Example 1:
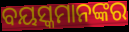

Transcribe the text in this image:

ବୟସ୍କମାନଙ୍କର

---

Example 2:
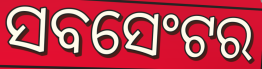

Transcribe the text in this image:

ସବସେଂଟର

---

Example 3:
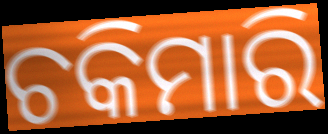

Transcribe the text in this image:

ଚକିମାରି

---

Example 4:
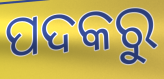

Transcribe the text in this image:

ପଦକରୁ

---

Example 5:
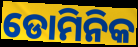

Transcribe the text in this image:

ଡୋମିନିକ